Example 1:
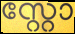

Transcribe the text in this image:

സ്റ്റോ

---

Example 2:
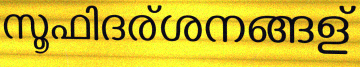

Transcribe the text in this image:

സൂഫിദര്ശനങ്ങള്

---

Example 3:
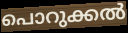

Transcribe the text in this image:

പൊറുക്കൽ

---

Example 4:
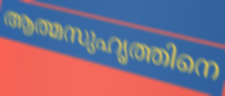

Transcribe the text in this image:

ആത്മസുഹൃത്തിനെ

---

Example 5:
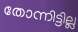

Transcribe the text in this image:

തോന്നിട്ടില്ല